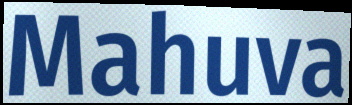
Mahuva